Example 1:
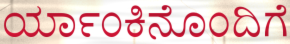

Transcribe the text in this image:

ರ್ಯಾಂಕಿನೊಂದಿಗೆ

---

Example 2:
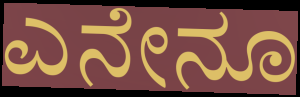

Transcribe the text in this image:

ಎನೇನೂ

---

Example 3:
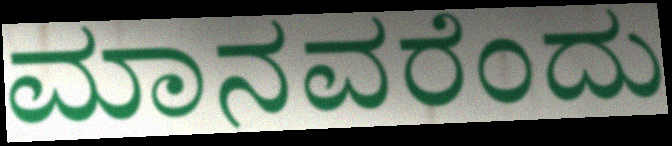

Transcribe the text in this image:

ಮಾನವರೆಂದು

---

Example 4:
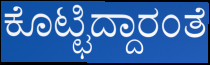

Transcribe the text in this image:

ಕೊಟ್ಟಿದ್ದಾರಂತೆ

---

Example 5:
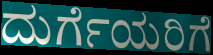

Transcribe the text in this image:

ದುರ್ಗೆಯರಿಗೆ